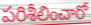
పరిశీలించారో